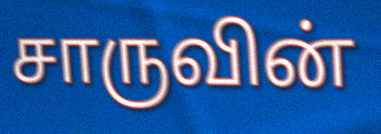
சாருவின்